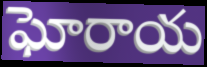
ఘోరాయ